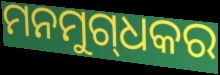
ମନମୁଗ୍‌ଧକର